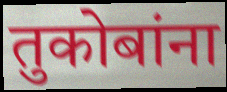
तुकोबांना